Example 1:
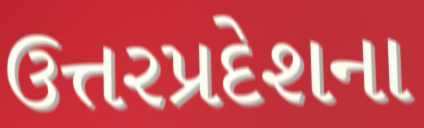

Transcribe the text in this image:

ઉત્તરપ્રદેશના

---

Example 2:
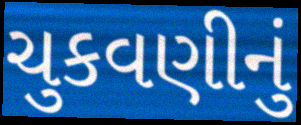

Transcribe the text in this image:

ચુકવણીનું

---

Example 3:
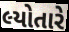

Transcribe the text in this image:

લ્યોતારે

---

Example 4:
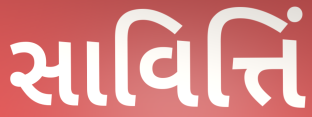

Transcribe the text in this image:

સાવિત્તિં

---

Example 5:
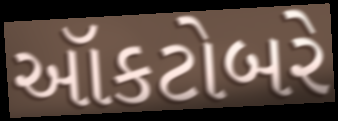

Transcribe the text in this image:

ઑકટોબરે